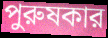
পুরুষকার